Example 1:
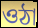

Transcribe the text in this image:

ওঠা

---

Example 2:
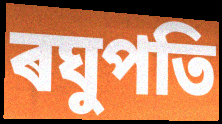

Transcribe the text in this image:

ৰঘুপতি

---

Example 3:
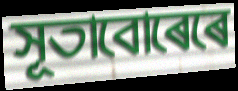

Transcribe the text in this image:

সূতাবোৰেৰে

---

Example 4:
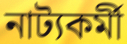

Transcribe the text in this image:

নাট্যকৰ্মী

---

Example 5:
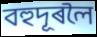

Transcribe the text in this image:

বহুদূৰলৈ